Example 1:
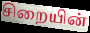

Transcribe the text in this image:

சிறையின்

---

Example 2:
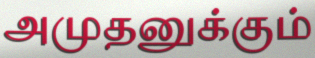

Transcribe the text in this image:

அமுதனுக்கும்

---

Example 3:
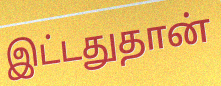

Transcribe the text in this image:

இட்டதுதான்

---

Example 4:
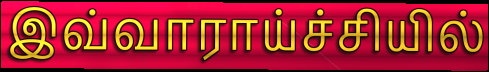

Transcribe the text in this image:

இவ்வாராய்ச்சியில்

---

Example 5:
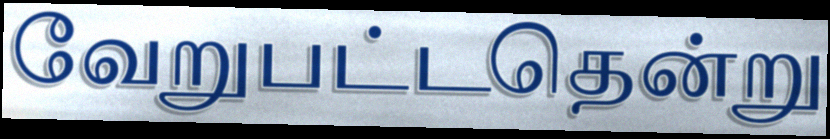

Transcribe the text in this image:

வேறுபட்டதென்று